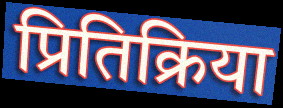
प्रितिक्रिया